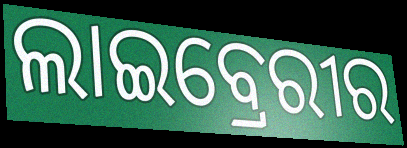
ଲାଇବ୍ରେରୀର